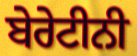
ਬੇਰੇਟੀਨੀ